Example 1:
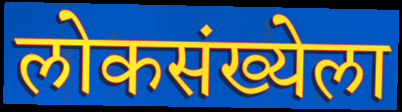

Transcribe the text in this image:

लोकसंख्येला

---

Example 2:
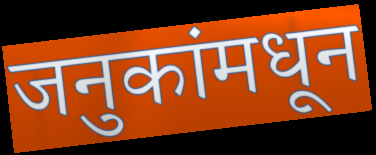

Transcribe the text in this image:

जनुकांमधून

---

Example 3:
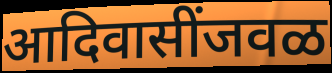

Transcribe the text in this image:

आदिवासींजवळ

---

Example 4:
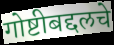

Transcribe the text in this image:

गोष्टीबद्दलचे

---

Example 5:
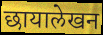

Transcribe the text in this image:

छायालेखन